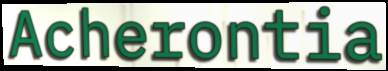
Acherontia